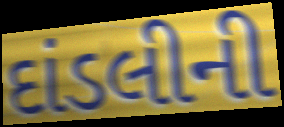
દાંડલીની